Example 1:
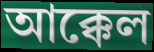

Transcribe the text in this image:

আক্কেল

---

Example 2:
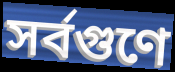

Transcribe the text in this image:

সর্বগুণে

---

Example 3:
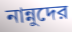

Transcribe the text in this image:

নান্নুদের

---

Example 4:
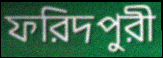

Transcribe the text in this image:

ফরিদপুরী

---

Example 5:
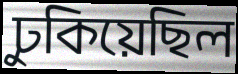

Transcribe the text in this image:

ঢুকিয়েছিল